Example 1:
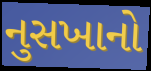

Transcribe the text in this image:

નુસખાનો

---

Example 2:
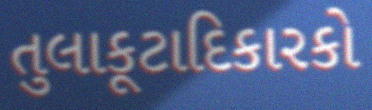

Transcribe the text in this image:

તુલાકૂટાદિકારકો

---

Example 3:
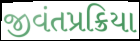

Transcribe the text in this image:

જીવંતપ્રક્રિયા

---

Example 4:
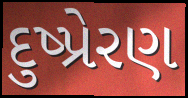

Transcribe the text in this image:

દુષ્પ્રેરણ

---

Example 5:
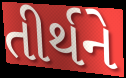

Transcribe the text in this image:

તીર્થને